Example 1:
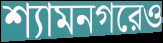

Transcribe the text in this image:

শ্যামনগরেও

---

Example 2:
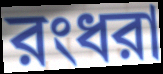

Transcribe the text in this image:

রংধরা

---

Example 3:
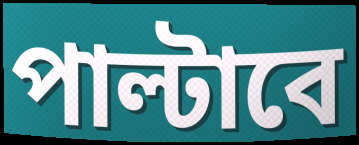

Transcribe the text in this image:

পাল্টাবে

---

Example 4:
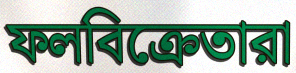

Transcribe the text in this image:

ফলবিক্রেতারা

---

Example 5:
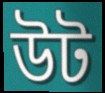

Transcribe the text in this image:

উট